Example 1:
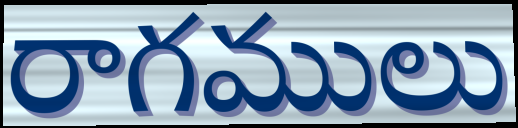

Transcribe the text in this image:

రాగములు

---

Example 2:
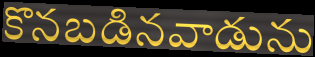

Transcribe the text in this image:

కొనబడినవాడును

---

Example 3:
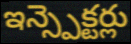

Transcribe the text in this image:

ఇన్స్పెక్టర్లు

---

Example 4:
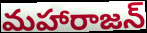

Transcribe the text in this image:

మహారాజన్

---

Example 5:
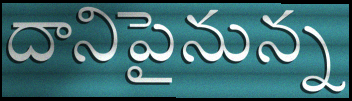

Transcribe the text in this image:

దానిపైనున్న